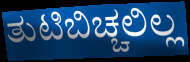
ತುಟಿಬಿಚ್ಚಲಿಲ್ಲ